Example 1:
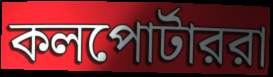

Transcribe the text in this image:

কলপোর্টাররা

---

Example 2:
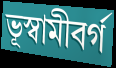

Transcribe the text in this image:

ভূস্বামীবর্গ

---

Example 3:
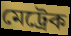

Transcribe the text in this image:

মেট্রেক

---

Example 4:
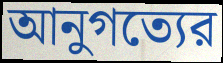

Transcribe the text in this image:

আনুগত্যের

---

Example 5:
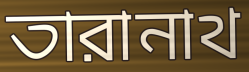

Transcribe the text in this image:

তারানাথ